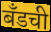
बँडची